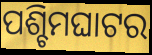
ପଶ୍ଚିମଘାଟର